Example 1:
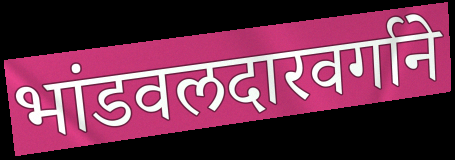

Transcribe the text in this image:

भांडवलदारवर्गाने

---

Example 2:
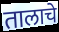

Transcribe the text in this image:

तालाचे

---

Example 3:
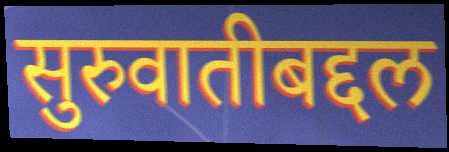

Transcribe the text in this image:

सुरुवातीबद्दल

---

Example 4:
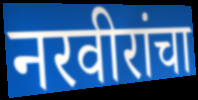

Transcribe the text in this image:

नरवीरांचा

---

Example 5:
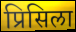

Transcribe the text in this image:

प्रिसिला